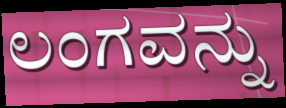
ಲಂಗವನ್ನು